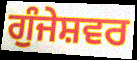
ਗੁੰਜੇਸ਼ਵਰ